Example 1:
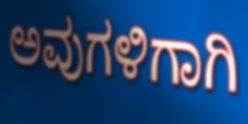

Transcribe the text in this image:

ಅವುಗಳಿಗಾಗಿ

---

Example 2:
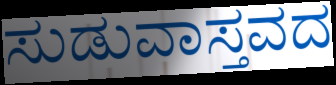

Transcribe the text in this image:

ಸುಡುವಾಸ್ತವದ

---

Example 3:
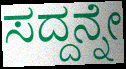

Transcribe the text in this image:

ಸದ್ದನ್ನೇ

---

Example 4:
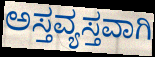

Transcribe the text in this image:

ಅಸ್ತವ್ಯಸ್ತವಾಗಿ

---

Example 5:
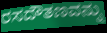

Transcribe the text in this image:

ರಸದೌತಣವನ್ನು